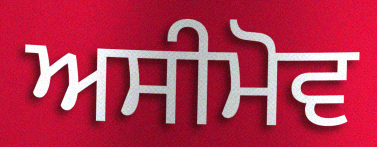
ਅਸੀਮੋਵ